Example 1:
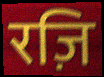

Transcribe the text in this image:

रज़ि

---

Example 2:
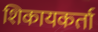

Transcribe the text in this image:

शिकायकर्ता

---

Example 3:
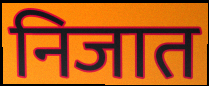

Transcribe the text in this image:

निजात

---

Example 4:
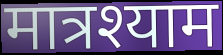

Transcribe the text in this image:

मात्रश्याम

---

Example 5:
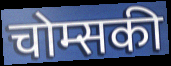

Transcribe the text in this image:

चोम्सकी